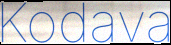
Kodava